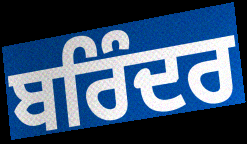
ਬਰਿੰਦਰ